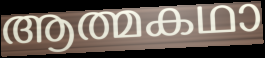
ആത്മകഥാ